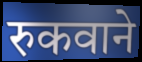
रुकवाने